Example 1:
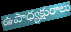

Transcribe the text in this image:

ఉపాధ్యక్షురాలు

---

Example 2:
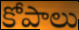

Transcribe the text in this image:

కోపాలు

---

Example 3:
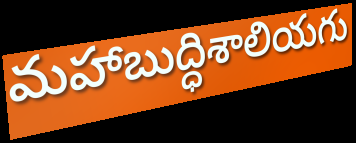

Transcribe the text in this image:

మహాబుద్ధిశాలియగు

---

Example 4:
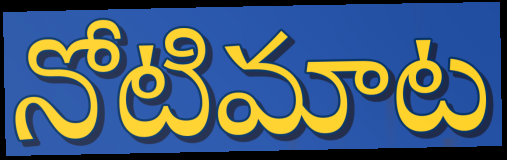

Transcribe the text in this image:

నోటిమాట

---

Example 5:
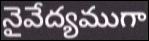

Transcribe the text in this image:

నైవేద్యముగా